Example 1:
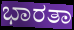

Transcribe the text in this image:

ಭಾರತಾ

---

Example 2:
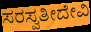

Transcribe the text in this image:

ಸರಸ್ವತೀದೇವಿ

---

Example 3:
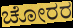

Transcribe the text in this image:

ಚೋರರ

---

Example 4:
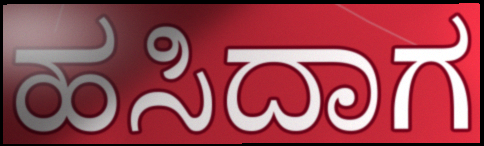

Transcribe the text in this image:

ಹಸಿದಾಗ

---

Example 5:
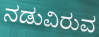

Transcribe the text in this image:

ನಡುವಿರುವ